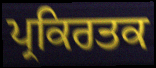
ਪ੍ਰਕਿਰਤਕ